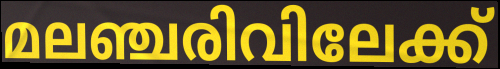
മലഞ്ചരിവിലേക്ക്